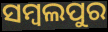
ସମ୍ବଲପୁର